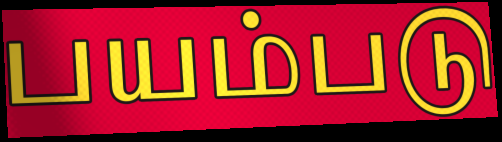
பயம்படு